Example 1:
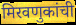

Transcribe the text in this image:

मिरवणुकांची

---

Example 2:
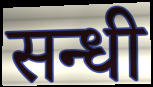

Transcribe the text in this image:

सन्धी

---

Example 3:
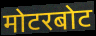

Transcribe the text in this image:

मोटरबोट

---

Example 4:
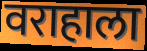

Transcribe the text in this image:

वराहाला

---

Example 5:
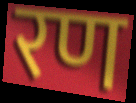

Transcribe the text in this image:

रण